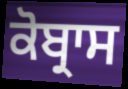
ਕੋਬ੍ਰਾਸ